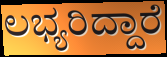
ಲಭ್ಯರಿದ್ದಾರೆ